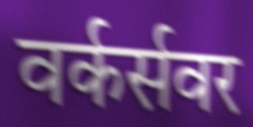
वर्कर्सवर